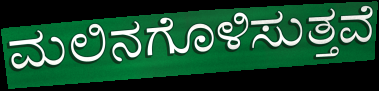
ಮಲಿನಗೊಳಿಸುತ್ತವೆ